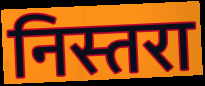
निस्तरा